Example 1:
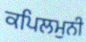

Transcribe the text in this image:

ਕਪਿਲਮੁਨੀ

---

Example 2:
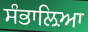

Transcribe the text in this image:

ਸੰਭਾਲ਼ਿਆ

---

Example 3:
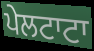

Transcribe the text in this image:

ਪੇਲਟਾਟਾ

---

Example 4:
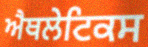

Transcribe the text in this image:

ਐਥਲੇਟਿਕਸ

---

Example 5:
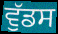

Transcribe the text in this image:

ਵੁੱਡਸ